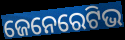
ଜେନେରେଟିଭ